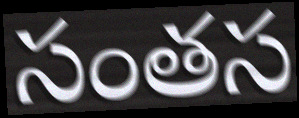
సంతస